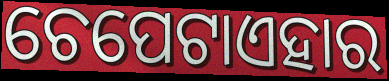
ଚେପେଟାଏହାର